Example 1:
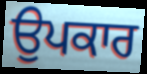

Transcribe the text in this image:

ਉਪਕਾਰ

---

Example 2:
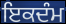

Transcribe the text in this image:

ਇਕਦੰਮ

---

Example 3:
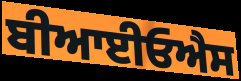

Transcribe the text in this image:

ਬੀਆਈਓਐਸ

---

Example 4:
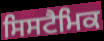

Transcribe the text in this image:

ਸਿਸਟੈਮਿਕ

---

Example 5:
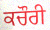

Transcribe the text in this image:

ਕਚੌਰੀ